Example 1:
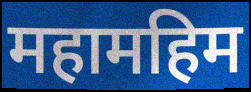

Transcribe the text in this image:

महामहिम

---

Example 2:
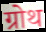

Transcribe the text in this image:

ग्रोथ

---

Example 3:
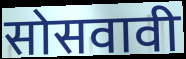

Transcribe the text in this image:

सोसवावी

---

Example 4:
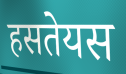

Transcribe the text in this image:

हसतेयस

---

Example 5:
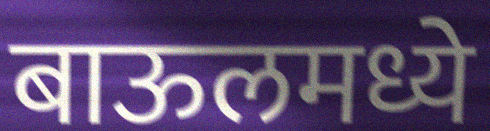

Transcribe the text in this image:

बाऊलमध्ये